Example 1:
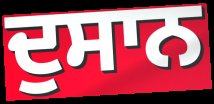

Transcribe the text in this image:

ਦੁਸਾਨ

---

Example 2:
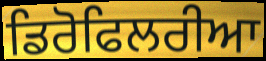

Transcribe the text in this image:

ਡਿਰੋਫਿਲਰੀਆ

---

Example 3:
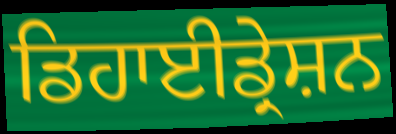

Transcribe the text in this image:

ਡਿਹਾਈਡ੍ਰੇਸ਼ਨ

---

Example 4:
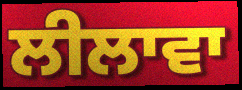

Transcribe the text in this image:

ਲੀਲਾਵਾ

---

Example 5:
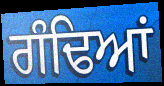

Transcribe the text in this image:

ਗੰਢਿਆਂ